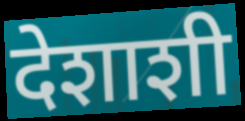
देशाशी